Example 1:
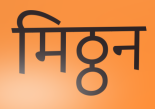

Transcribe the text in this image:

मिठ्ठन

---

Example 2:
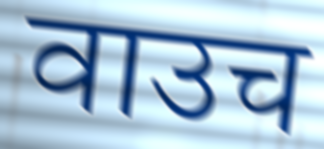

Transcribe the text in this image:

वाउच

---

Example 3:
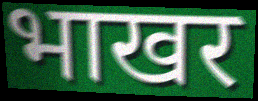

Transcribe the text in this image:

भाखर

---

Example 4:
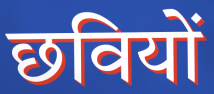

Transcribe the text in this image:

छवियों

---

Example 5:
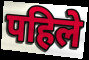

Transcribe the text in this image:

पहिले